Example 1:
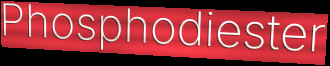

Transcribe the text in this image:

Phosphodiester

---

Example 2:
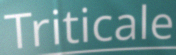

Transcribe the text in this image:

Triticale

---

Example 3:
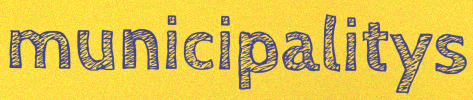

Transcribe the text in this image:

municipalitys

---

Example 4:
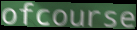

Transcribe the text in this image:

ofcourse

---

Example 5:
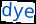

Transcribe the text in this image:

dye